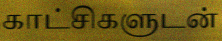
காட்சிகளுடன்